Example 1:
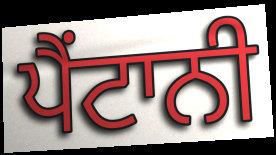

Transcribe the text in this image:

ਪੈਂਟਾਨੀ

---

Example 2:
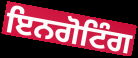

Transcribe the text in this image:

ਇਨਗੋਟਿੰਗ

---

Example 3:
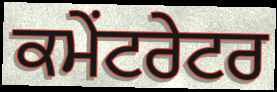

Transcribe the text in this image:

ਕਮੇਂਟਰੇਟਰ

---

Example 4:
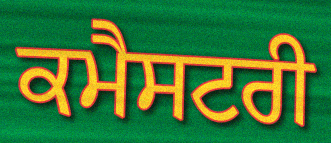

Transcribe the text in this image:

ਕਮੈਸਟਰੀ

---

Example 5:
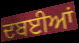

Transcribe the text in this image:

ਦਬਈਆਂ